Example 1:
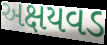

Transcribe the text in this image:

અક્ષયવડ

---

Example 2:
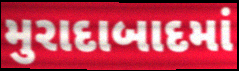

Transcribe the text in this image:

મુરાદાબાદમાં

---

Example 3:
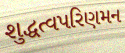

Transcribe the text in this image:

શુદ્ધત્વપરિણમન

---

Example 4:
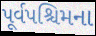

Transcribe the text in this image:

પૂર્વપશ્ચિમના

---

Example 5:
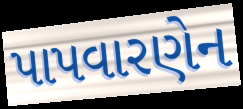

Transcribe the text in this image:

પાપવારણેન